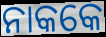
ନାକକେ